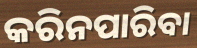
କରିନପାରିବା